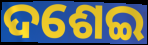
ଦଶେଇ